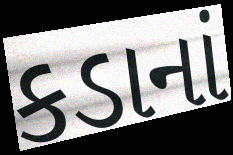
કડાનાં